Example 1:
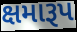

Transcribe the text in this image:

ક્ષમારૂપ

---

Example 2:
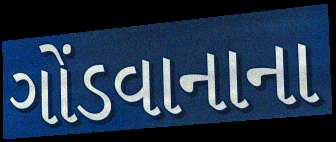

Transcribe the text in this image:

ગોંડવાનાના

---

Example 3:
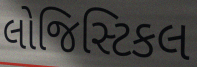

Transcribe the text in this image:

લોજિસ્ટિકલ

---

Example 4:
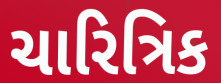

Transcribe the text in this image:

ચારિત્રિક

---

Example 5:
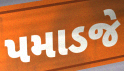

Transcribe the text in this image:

પમાડજે